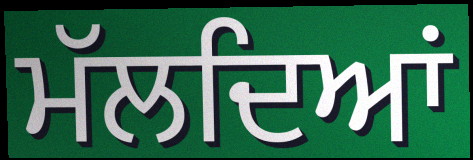
ਮੱਲਦਿਆਂ